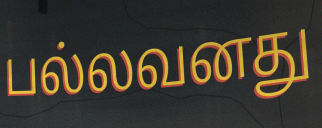
பல்லவனது